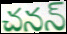
చనన్